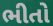
ભીતો